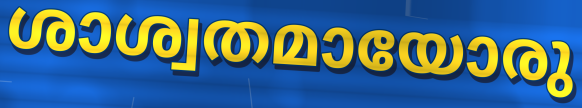
ശാശ്വതമായോരു